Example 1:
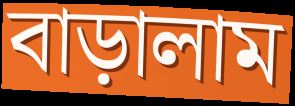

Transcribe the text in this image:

বাড়ালাম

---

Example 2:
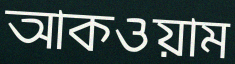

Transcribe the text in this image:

আকওয়াম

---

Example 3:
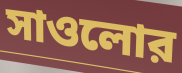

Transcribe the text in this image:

সাওলোর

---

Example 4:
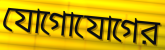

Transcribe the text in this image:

যোগোযোগের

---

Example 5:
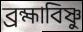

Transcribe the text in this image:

ব্রহ্মাবিষ্ণু